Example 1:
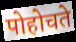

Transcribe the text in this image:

पोहोचते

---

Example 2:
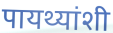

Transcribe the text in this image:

पायथ्यांशी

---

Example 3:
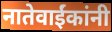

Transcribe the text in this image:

नातेवाईंकांनी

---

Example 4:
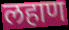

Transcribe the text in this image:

लहाण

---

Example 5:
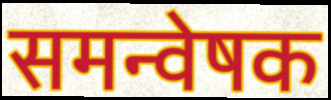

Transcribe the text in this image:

समन्वेषक